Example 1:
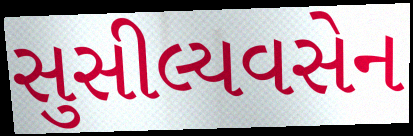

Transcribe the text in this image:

સુસીલ્યવસેન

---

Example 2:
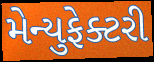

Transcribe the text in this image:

મેન્યુફેક્ટરી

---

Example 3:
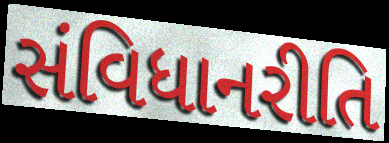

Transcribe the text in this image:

સંવિધાનરીતિ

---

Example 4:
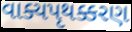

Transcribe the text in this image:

વાક્યપૃથક્કરણ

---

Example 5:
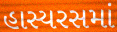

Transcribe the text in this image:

હાસ્યરસમાં